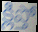
క్లిప్తో